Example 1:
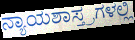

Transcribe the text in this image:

ನ್ಯಾಯಶಾಸ್ತ್ರಗಳಲ್ಲಿ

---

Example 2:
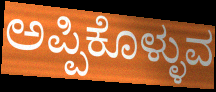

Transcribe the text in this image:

ಅಪ್ಪಿಕೊಳ್ಳುವ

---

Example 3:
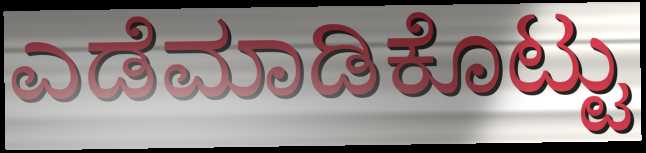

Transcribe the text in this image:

ಎಡೆಮಾಡಿಕೊಟ್ಟು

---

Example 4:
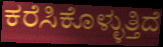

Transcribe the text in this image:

ಕರೆಸಿಕೊಳ್ಳುತ್ತಿದೆ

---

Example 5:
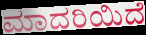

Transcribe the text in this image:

ಮಾದರಿಯಿದೆ